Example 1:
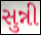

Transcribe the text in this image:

સુન્ની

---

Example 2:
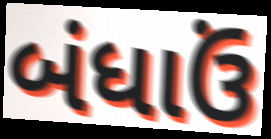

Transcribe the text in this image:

બંધાઉં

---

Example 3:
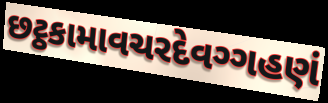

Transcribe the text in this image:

છટ્ઠકામાવચરદેવગ્ગહણં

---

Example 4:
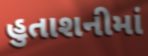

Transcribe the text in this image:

હુતાશનીમાં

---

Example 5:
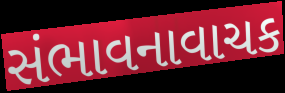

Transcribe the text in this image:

સંભાવનાવાચક